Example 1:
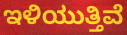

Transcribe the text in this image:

ಇಳಿಯುತ್ತಿವೆ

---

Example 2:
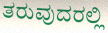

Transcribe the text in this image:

ತರುವುದರಲ್ಲಿ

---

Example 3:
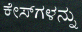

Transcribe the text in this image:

ಕೇಸ್‌ಗಳನ್ನು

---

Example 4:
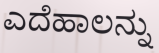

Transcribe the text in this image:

ಎದೆಹಾಲನ್ನು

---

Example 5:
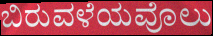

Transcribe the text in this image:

ಬಿರುವಳೆಯವೊಲು